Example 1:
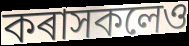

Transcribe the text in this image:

কৰাসকলেও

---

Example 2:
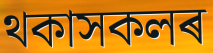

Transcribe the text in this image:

থকাসকলৰ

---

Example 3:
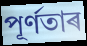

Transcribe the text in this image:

পূৰ্ণতাৰ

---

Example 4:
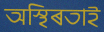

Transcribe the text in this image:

অস্থিৰতাই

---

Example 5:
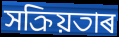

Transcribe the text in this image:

সক্ৰিয়তাৰ